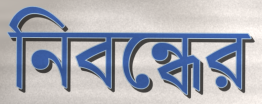
নিবন্ধের